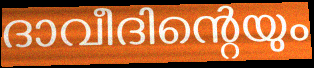
ദാവീദിന്റെയും